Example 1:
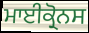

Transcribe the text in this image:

ਮਾਈਕ੍ਰੋਨਸ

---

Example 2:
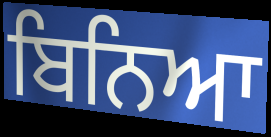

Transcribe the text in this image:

ਬਿਨਿਆ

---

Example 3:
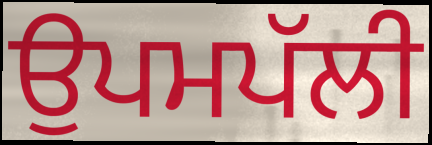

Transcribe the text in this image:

ਉਪਮਪੱਲੀ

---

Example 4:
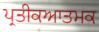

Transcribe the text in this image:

ਪ੍ਰਤੀਕਆਤਮਕ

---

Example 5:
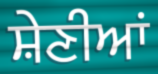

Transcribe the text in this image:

ਸ਼ੇਣੀਆਂ